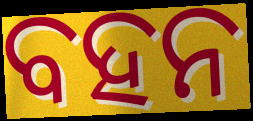
ବହନ